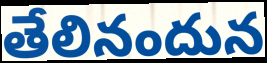
తేలినందున